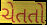
ચેતતો